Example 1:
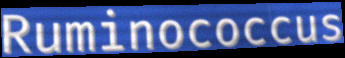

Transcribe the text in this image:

Ruminococcus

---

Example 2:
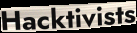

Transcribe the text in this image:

Hacktivists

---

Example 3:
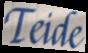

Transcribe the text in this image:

Teide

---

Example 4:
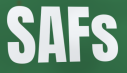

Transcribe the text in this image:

SAFs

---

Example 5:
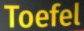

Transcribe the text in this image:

Toefel